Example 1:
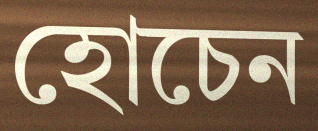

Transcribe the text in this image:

হোচেন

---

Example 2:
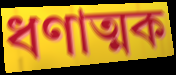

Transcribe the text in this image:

ধণাত্মক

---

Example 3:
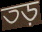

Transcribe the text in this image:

তড়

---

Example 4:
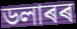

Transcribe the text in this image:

ডলাৰৰ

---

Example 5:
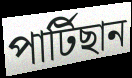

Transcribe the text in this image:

পাৰ্টিছান